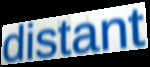
distant